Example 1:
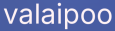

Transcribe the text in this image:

valaipoo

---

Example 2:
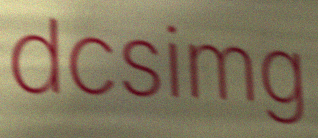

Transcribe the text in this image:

dcsimg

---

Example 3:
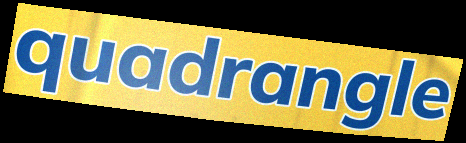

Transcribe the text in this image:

quadrangle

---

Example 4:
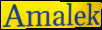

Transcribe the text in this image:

Amalek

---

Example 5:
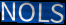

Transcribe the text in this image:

NOLS